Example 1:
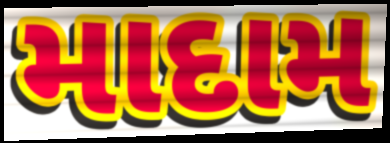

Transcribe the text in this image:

માદામ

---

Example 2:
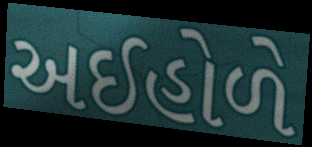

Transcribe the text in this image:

અઈહોળે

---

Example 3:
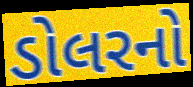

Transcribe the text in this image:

ડોલરનો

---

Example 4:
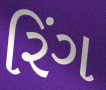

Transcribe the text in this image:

રિંગ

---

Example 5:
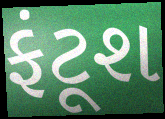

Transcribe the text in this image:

ફંટૂશ